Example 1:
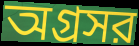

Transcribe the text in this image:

অগ্রসর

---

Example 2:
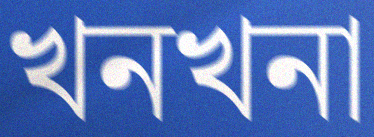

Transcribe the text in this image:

খনখনা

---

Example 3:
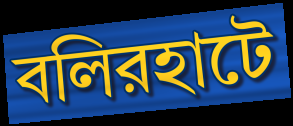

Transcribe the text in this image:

বলিরহাটে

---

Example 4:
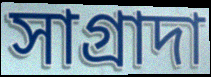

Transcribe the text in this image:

সাগ্রাদা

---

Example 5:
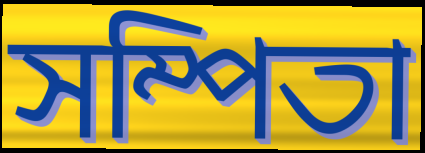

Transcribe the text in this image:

সম্পিতা